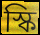
স্কি